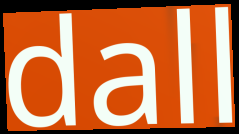
dall